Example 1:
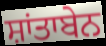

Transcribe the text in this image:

ਸ਼ਾਂਤਾਬੇਨ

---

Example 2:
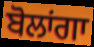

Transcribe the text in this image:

ਬੋਲਾਂਗਾ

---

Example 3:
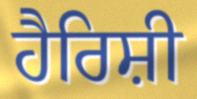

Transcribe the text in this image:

ਹੈਰਿਸ਼ੀ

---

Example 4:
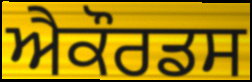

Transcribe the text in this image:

ਐਕੌਰਡਸ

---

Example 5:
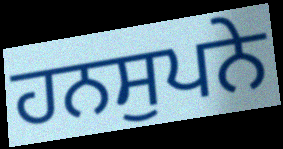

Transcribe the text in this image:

ਹਨਸੁਪਨੇ